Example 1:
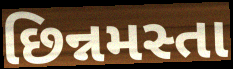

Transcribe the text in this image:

છિન્નમસ્તા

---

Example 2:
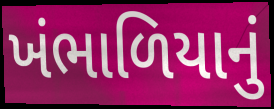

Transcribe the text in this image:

ખંભાળિયાનું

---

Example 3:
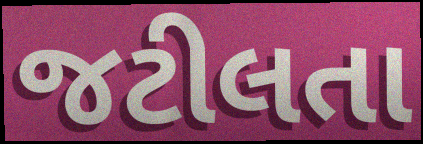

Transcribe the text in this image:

જટીલતા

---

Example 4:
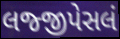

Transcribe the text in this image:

લજ્જીપેસલં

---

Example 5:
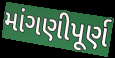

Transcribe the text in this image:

માંગણીપૂર્ણ